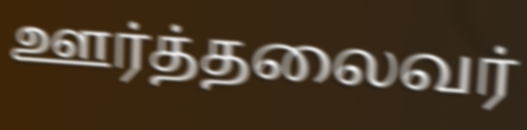
ஊர்த்தலைவர்